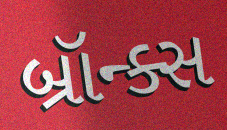
બ્રૉન્ક્સ